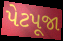
પેટપૂજા